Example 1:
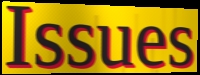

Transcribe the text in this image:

Issues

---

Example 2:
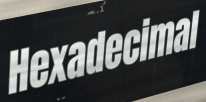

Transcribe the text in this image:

Hexadecimal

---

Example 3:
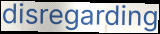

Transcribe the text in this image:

disregarding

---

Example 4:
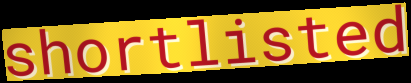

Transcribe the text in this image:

shortlisted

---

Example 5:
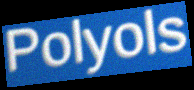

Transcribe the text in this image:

Polyols